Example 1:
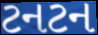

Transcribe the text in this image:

ટનટન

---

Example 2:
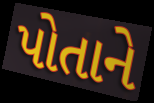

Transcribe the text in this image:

પોતાને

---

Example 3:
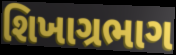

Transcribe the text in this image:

શિખાગ્રભાગ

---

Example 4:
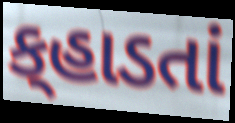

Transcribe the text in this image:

ક્‌હાડતાં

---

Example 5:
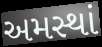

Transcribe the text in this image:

અમસ્થાં